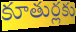
కూతుర్లకు